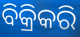
ବିକ୍ରିକରି